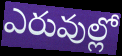
ఎరువుల్లో